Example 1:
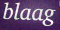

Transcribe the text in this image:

blaag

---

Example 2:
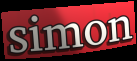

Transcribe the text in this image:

simon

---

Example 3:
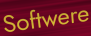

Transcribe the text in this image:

Softwere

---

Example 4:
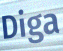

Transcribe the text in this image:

Diga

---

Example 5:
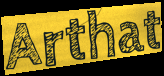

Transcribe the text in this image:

Arthat